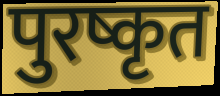
पुरष्कृत